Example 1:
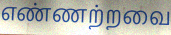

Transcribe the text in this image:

எண்ணற்றவை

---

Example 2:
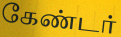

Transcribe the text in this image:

கேண்டர்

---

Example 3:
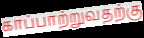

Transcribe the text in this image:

காப்பாற்றுவதற்கு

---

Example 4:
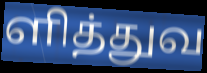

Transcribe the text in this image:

ளித்துவ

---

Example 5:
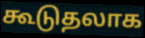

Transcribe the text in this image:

கூடுதலாக